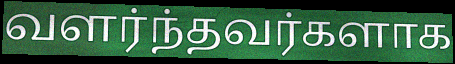
வளர்ந்தவர்களாக